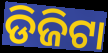
ଡିଜିଟା